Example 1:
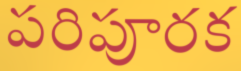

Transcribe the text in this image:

పరిపూరక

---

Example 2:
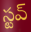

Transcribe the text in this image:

స్టవ్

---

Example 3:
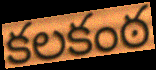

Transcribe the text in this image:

కలకంఠ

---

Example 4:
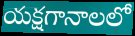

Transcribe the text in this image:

యక్షగానాలలో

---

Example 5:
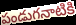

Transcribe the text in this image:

పండుగనాటికి